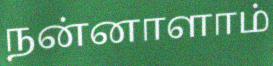
நன்னாளாம்